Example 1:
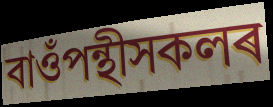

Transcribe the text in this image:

বাওঁপন্থীসকলৰ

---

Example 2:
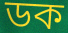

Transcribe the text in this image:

ডক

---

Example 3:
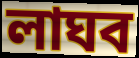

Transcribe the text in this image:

লাঘব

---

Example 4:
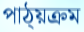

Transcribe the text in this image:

পাঠ্য়ক্ৰম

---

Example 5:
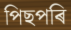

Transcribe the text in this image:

পিছপৰি